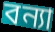
বন্যা